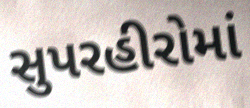
સુપરહીરોમાં